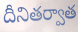
దీనితర్వాత